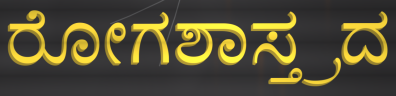
ರೋಗಶಾಸ್ತ್ರದ